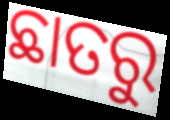
ଛାତରୁ